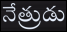
నేత్రుడు